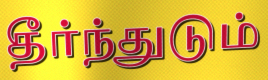
தீர்ந்துடும்